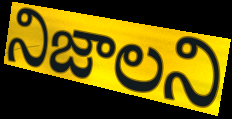
నిజాలని